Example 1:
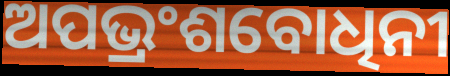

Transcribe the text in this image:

ଅପଭ୍ରଂଶବୋଧିନୀ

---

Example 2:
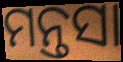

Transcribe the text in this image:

ମନ୍ତସା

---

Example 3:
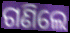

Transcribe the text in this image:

ଗଣିଲେ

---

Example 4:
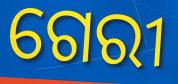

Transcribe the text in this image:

ଗେରୀ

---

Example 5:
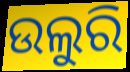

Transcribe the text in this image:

ଉଲୁରି